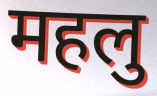
महलु